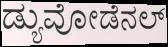
ಡ್ಯುವೋಡೆನಲ್